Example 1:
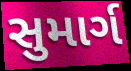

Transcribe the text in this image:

સુમાર્ગ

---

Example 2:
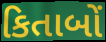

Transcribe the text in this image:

કિતાબોં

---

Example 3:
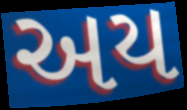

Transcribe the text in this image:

અય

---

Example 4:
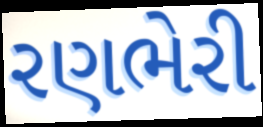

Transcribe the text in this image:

રણભેરી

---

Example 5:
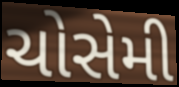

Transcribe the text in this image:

ચોસેમી